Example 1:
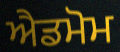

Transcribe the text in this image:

ਐਡਮੋਮ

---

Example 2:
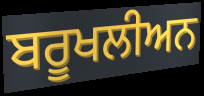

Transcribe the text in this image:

ਬਰੂਖਲੀਅਨ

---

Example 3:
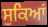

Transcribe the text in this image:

ਸੁਕਿਆਂ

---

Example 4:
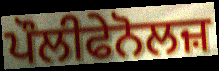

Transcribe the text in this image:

ਪੌਲੀਫੇਨੋਲਜ਼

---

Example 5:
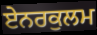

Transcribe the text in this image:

ਏਨਰਕੁਲਮ